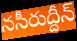
నసీరుద్దీన్